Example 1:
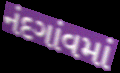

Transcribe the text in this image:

નંદગાંવમાં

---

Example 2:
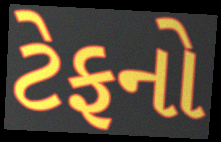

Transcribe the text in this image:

ટેફનો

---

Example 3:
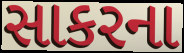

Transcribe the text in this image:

સાકરના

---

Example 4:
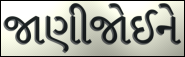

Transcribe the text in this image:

જાણીજોઈને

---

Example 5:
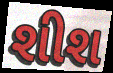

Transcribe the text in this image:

શીશ